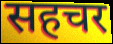
सहचर